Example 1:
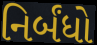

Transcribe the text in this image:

નિર્બંધો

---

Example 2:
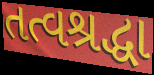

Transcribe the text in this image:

તત્વશ્રદ્ધા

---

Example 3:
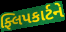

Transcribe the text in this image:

ફ્લિપકાર્ટને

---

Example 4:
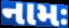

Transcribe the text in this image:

નામઃ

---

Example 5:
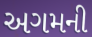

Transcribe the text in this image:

અગમની